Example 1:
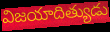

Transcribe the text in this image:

విజయాదిత్యుడు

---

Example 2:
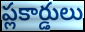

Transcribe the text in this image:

ప్లకార్డులు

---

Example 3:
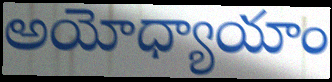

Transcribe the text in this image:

అయోధ్యాయాం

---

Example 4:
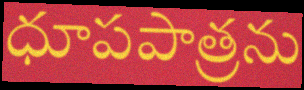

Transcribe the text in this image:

ధూపపాత్రను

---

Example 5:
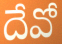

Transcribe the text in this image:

దేవో